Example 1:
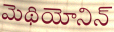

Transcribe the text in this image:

మెథియోనిన్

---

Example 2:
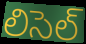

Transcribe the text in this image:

లిసెల్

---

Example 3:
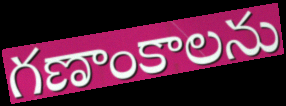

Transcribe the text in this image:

గణాంకాలను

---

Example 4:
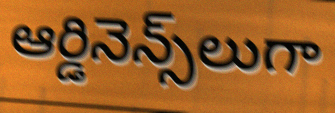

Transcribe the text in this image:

ఆర్డినెన్స్‌లుగా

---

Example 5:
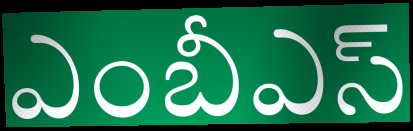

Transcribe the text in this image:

ఎంబీఎస్